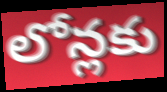
లోన్లకు